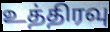
உத்திரவு